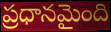
ప్రధానమైంది